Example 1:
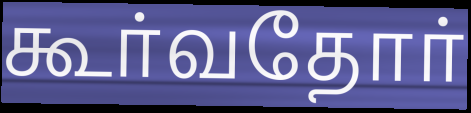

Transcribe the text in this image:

கூர்வதோர்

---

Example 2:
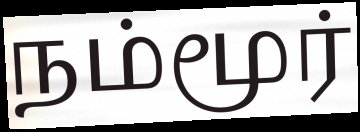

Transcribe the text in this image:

நம்மூர்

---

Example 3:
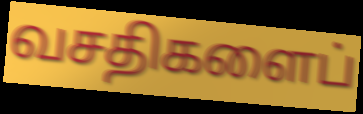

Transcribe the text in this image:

வசதிகளைப்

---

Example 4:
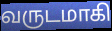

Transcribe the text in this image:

வருடமாகி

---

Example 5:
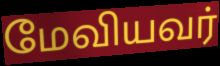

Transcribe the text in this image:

மேவியவர்